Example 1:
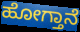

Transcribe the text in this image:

ಹೋಗ್ತಾನೆ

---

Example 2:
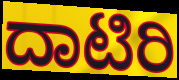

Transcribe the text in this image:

ದಾಟಿರಿ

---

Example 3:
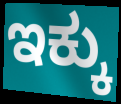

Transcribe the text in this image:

ಇಕ್ಕು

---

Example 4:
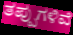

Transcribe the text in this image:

ತಪ್ಪುಗಳಿವೆ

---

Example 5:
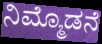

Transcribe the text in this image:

ನಿಮ್ಮೊಡನೆ